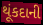
થૂંકદાની